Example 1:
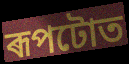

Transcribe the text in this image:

ৰূপটোত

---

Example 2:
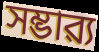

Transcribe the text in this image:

সম্ভাৱ্য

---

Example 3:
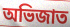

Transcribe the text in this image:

অভিজাত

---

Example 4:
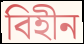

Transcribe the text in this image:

বিহীন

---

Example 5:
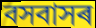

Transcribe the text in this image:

বসবাসৰ